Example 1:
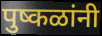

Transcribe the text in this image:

पुष्कळांनी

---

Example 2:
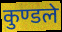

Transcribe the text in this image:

कुण्डले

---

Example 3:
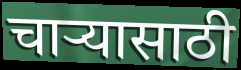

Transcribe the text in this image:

चार्‍यासाठी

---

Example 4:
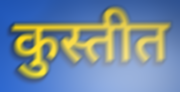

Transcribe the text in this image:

कुस्तीत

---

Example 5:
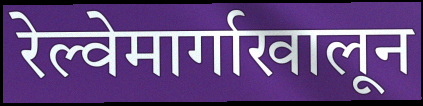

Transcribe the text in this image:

रेल्वेमार्गाखालून